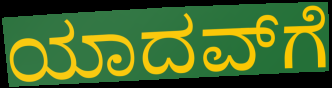
ಯಾದವ್‌ಗೆ